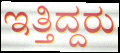
ಇತ್ತಿದ್ದರು